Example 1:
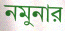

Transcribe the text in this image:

নমুনার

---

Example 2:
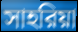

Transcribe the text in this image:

সাহরিয়া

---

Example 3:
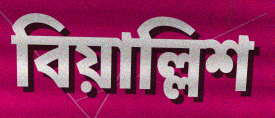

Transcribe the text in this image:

বিয়াল্লিশ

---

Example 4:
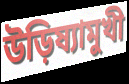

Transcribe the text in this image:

উড়িষ্যামুখী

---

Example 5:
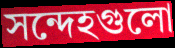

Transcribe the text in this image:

সন্দেহগুলো